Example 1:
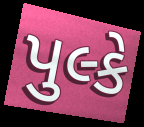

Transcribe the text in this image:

પુલ્કે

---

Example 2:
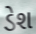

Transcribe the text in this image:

ડેશ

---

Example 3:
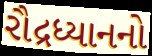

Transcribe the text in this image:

રૌદ્રધ્યાનનો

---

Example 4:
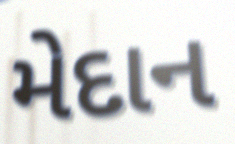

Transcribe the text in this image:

મેદાન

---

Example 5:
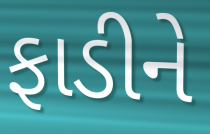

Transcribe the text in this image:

ફાડીને